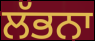
ਲੱਭਨਾ